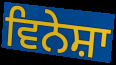
ਵਿਨੇਸ਼ਾ